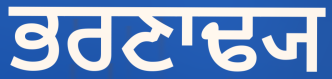
ਭਰਣਾਢ੍ਯ